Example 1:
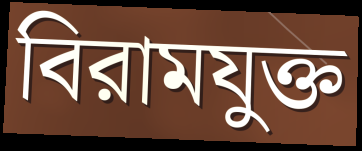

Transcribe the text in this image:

বিরামযুক্ত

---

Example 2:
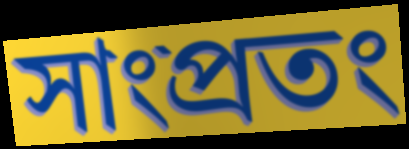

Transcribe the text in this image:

সাংপ্রতং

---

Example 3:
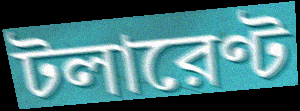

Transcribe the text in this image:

টলারেণ্ট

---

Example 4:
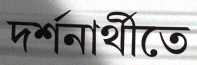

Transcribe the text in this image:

দর্শনার্থীতে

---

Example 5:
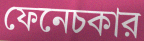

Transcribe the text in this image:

ফেনেচকার